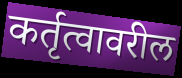
कर्तृत्वावरील